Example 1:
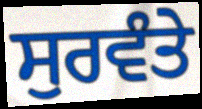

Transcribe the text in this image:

ਸੁਰਵੰਤੇ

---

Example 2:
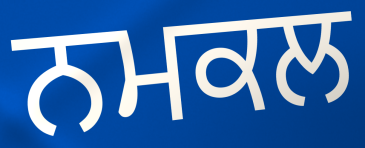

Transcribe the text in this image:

ਨਮਕਲ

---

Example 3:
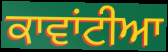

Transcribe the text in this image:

ਕਾਵਾਂਟੀਆ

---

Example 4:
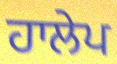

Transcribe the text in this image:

ਹਾਲੇਪ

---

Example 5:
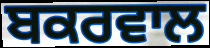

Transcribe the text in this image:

ਬਕਰਵਾਲ